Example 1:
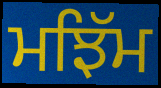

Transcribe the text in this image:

ਮਝਿੱਮ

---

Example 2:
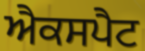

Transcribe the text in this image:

ਐਕਸਪੈਟ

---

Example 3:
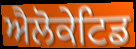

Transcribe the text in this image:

ਐਲੋਕੇਟਿਡ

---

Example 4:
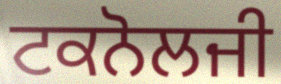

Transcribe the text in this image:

ਟਕਨੋਲਜੀ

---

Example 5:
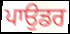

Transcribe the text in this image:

ਪਾਉਡਰ